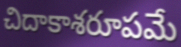
చిదాకాశరూపమే